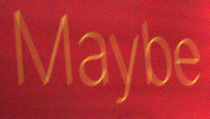
Maybe